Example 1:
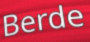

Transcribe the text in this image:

Berde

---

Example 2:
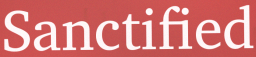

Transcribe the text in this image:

Sanctified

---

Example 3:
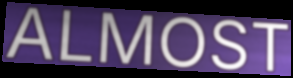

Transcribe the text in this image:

ALMOST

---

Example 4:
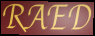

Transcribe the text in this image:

RAED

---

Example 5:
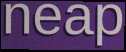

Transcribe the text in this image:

neap